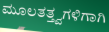
ಮೂಲತತ್ತ್ವಗಳಿಗಾಗಿ